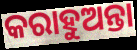
କରାହୁଅନ୍ତା